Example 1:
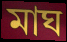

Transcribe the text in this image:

মাঘ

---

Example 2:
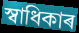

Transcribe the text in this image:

স্বাধিকাৰ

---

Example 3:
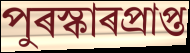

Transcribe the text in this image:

পুৰস্কাৰপ্ৰাপ্ত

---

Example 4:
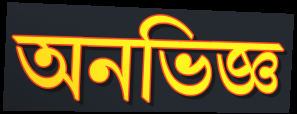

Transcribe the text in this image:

অনভিজ্ঞ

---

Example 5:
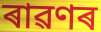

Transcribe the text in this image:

ৰাৱণৰ